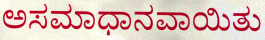
ಅಸಮಾಧಾನವಾಯಿತು